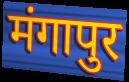
मंगापुर